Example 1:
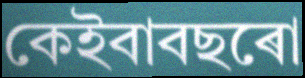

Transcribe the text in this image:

কেইবাবছৰো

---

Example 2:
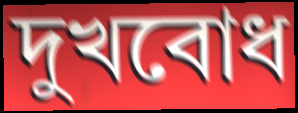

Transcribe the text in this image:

দুখবোধ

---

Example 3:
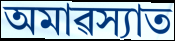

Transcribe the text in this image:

অমাৱস্যাত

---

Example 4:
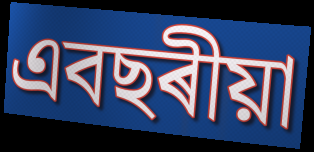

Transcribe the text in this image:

এবছৰীয়া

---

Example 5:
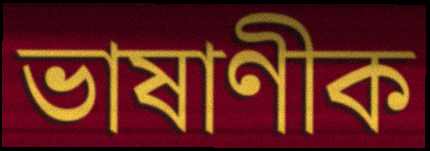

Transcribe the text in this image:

ভাষাণীক